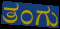
ತಂಗು